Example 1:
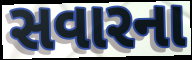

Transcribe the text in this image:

સવારના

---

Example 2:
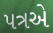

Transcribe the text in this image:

પત્રએ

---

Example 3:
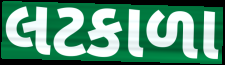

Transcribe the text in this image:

લટકાળા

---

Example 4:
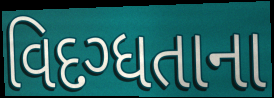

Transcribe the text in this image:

વિદગ્ધતાના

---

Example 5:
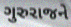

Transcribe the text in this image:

ગુરુરાજને